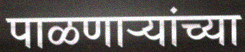
पाळणाऱ्यांच्या